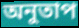
অনুতাপ